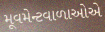
મૂવમેન્ટવાળાઓએ